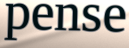
pense